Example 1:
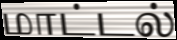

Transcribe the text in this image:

மாட்டல்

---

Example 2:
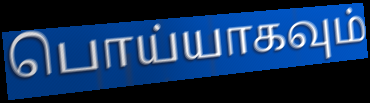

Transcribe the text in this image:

பொய்யாகவும்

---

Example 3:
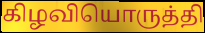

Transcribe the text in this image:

கிழவியொருத்தி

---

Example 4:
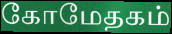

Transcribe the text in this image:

கோமேதகம்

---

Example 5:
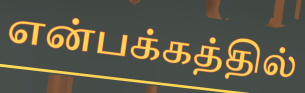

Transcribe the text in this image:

என்பக்கத்தில்